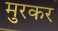
मुरकर